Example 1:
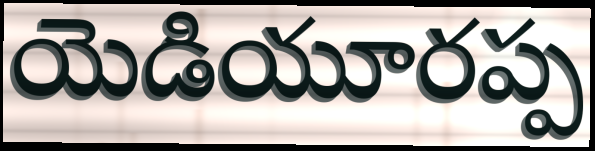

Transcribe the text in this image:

యెడియూరప్ప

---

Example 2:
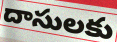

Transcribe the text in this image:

దాసులకు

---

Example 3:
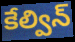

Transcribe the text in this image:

కేల్విన్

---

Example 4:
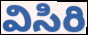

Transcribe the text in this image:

విసిరి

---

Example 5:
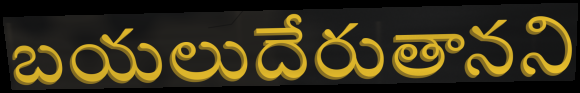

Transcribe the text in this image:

బయలుదేరుతానని